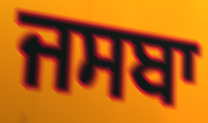
ਜਸਬਾ